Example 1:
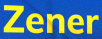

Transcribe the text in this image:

Zener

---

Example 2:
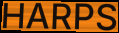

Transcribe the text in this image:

HARPS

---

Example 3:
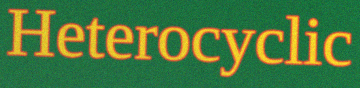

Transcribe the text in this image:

Heterocyclic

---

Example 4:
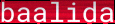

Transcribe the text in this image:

baalida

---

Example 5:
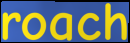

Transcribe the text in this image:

roach